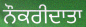
ਨੌਕਰੀਦਾਤਾ